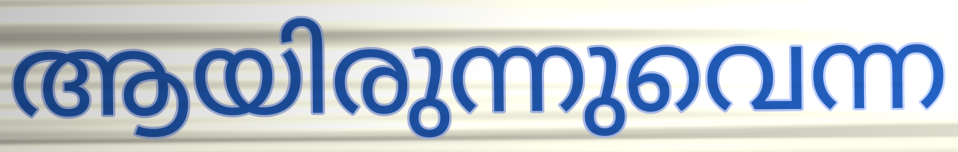
ആയിരുന്നുവെന്ന